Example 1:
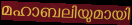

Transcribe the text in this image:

മഹാബലിയുമായി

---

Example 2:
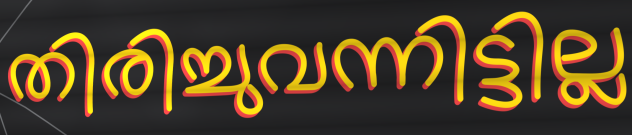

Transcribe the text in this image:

തിരിച്ചുവന്നിട്ടില്ല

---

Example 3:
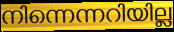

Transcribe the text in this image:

നിന്നെന്നറിയില്ല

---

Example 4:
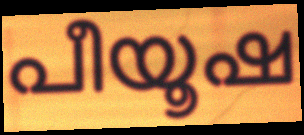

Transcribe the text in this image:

പീയൂഷ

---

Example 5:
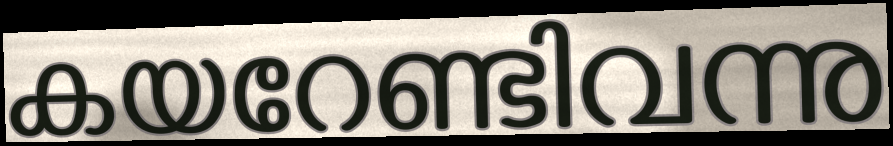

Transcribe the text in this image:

കയറേണ്ടിവന്നു